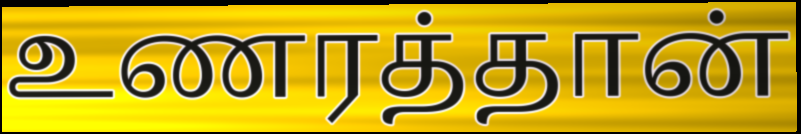
உணரத்தான்